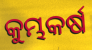
କୁମ୍ଭକର୍ଷ